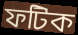
ফটিক